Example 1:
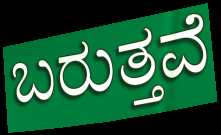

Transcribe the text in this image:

ಬರುತ್ತವೆ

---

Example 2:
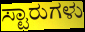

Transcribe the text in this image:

ಸ್ಟಾರುಗಳು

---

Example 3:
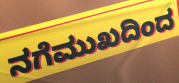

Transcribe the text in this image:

ನಗೆಮುಖದಿಂದ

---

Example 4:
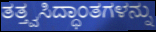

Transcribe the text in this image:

ತತ್ತ್ವಸಿದ್ಧಾಂತಗಳನ್ನು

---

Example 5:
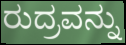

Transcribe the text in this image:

ರುದ್ರವನ್ನು